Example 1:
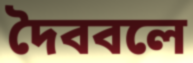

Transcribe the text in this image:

দৈববলে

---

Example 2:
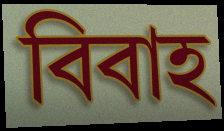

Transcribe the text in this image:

বিবাহ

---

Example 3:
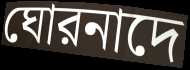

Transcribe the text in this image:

ঘোরনাদে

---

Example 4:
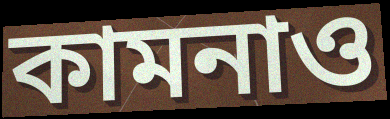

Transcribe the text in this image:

কামনাও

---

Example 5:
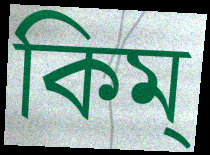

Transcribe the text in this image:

কিম্